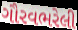
ગૌરવભરેલી